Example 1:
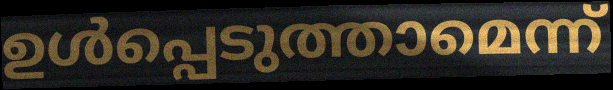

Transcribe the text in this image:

ഉൾപ്പെടുത്താമെന്ന്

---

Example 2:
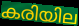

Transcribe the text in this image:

കരിയില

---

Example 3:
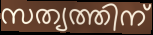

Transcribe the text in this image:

സത്യത്തിന്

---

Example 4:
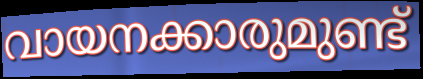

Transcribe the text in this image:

വായനക്കാരുമുണ്ട്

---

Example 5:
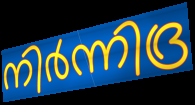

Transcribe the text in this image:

നിർന്നിദ്ര